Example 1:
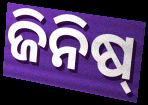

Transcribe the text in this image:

ଜିନିଷ୍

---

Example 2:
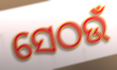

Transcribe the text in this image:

ସେଠଉଁ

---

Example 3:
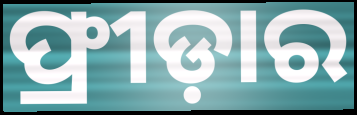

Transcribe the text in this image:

ଫ୍ରୀଡ଼ାର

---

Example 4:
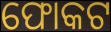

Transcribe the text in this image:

ଫୋକଟ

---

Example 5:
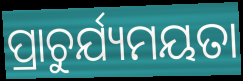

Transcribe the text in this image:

ପ୍ରାଚୁର୍ଯ୍ୟମୟତା